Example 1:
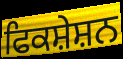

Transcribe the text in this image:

ਫਿਕਸ਼ੇਸ਼ਨ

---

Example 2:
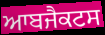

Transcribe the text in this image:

ਆਬਜੈਕਟਸ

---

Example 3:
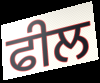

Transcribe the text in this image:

ਫੀਲ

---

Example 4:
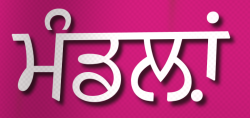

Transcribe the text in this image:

ਮੰਡਲ਼ਾਂ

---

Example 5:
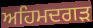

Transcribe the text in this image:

ਅਹਿਮਦਗੜ